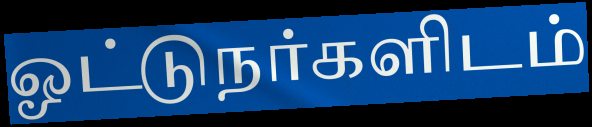
ஓட்டுநர்களிடம்